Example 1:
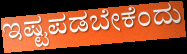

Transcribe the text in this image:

ಇಷ್ಟಪಡಬೇಕೆಂದು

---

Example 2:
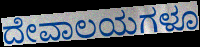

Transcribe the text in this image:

ದೇವಾಲಯಗಳೂ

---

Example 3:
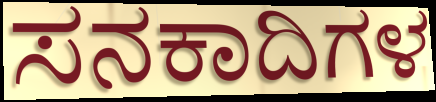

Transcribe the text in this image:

ಸನಕಾದಿಗಳ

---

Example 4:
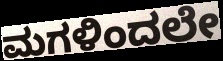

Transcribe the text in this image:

ಮಗಳಿಂದಲೇ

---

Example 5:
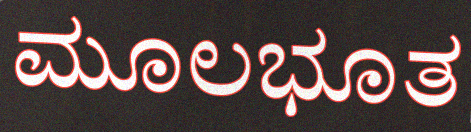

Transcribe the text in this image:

ಮೂಲಭೂತ